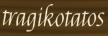
tragikotatos